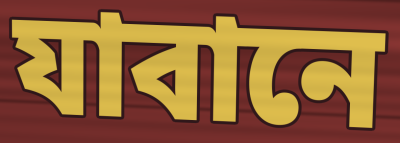
যাবানে